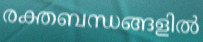
രക്തബന്ധങ്ങളിൽ